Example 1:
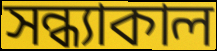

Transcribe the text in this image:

সন্ধ্যাকাল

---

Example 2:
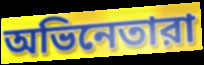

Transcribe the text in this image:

অভিনেতারা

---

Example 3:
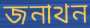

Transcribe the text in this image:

জনাথন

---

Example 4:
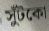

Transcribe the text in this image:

সুঁটকো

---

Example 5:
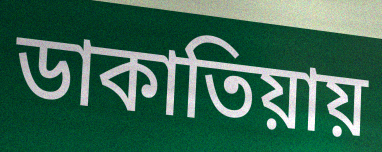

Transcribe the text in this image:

ডাকাতিয়ায়